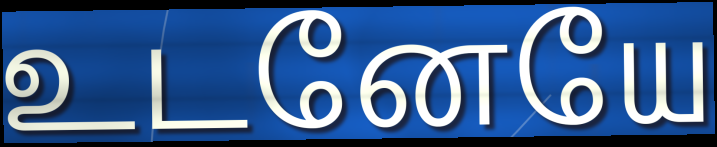
உடனேயே